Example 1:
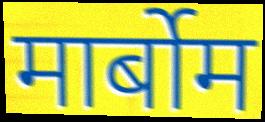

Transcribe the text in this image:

मार्बोम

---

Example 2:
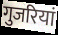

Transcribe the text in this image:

गुजरियां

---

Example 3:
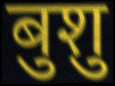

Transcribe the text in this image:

बुशु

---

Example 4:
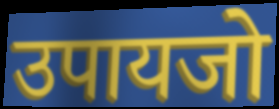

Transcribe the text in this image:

उपायजो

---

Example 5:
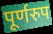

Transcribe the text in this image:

पूर्णरुप